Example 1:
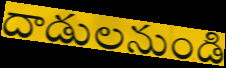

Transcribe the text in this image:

దాడులనుండి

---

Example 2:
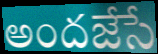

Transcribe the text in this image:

అందజేసే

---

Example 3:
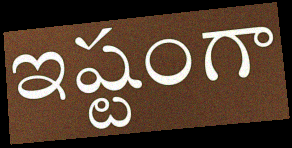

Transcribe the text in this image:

ఇష్టంగా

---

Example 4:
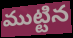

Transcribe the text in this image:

ముట్టిన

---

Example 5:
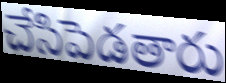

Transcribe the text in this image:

చేసిపెడతారు